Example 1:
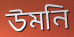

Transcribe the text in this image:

উমনি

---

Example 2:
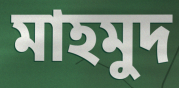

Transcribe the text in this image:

মাহমুদ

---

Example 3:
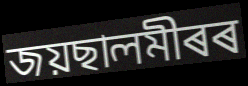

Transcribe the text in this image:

জয়ছালমীৰৰ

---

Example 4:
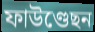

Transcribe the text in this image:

ফাউণ্ডেছন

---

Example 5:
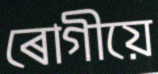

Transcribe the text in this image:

ৰোগীয়ে